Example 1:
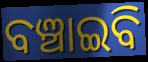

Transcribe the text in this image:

ବଞ୍ଚାଇବି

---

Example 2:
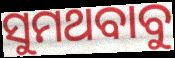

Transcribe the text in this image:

ସୁମଥବାବୁ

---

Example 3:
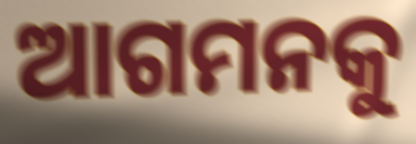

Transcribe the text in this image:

ଆଗମନକୁ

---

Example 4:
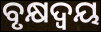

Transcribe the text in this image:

ବୃକ୍ଷଦ୍ୱୟ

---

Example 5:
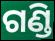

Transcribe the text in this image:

ଗଣ୍ଡି